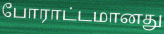
போராட்டமானது